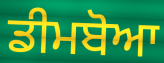
ਡੀਮਬੋਆ